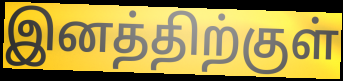
இனத்திற்குள்